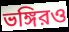
ভঙ্গিরও